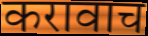
करावाच